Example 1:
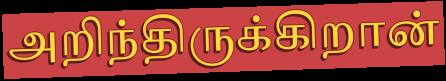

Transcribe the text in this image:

அறிந்திருக்கிறான்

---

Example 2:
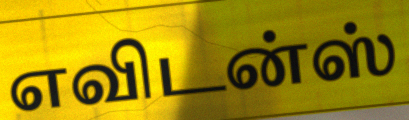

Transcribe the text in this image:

எவிடன்ஸ்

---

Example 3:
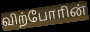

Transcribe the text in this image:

விற்போரின்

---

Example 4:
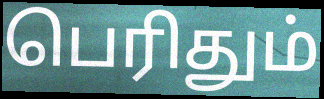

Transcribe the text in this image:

பெரிதும்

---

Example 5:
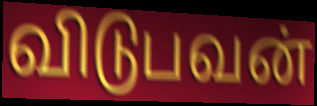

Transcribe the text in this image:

விடுபவன்